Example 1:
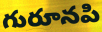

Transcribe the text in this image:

గురూనపి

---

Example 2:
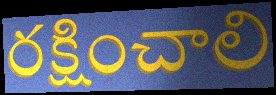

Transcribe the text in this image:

రక్షించాలి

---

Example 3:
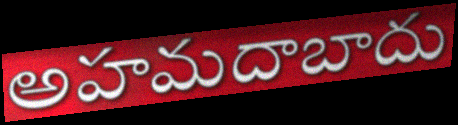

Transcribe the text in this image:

అహమదాబాదు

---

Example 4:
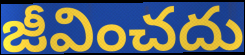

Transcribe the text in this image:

జీవించదు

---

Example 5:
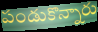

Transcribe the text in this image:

పండుకొన్నారు